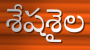
శేషశైల